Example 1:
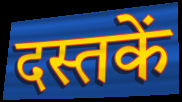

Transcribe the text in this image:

दस्तकें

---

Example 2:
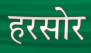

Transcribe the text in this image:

हरसोर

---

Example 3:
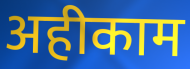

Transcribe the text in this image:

अहीकाम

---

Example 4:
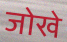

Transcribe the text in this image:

जोखे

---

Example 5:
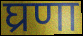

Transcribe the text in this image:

घ्रणा